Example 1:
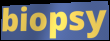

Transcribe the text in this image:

biopsy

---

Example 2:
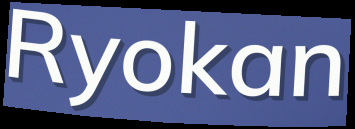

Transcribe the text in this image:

Ryokan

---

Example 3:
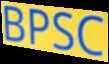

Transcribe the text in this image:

BPSC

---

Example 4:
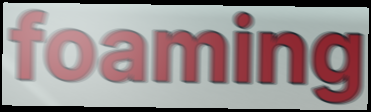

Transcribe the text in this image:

foaming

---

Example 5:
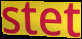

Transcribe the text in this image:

stet